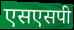
एसएसपी